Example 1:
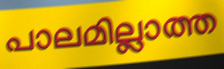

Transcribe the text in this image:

പാലമില്ലാത്ത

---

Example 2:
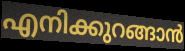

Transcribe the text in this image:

എനിക്കുറങ്ങാൻ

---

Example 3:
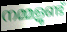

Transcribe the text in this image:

നമ്മളുണ്ട്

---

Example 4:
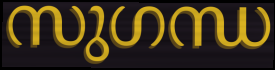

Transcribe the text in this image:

സുഗന്ധ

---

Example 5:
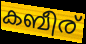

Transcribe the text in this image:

കബീര്